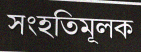
সংহতিমূলক